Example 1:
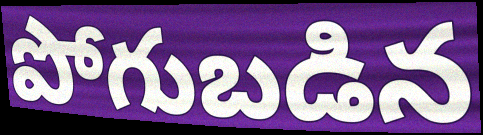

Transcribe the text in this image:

పోగుబడిన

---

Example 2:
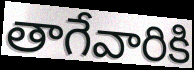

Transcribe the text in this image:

తాగేవారికి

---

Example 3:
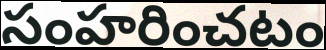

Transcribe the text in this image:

సంహరించటం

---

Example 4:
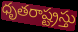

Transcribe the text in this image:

ధృతరాష్ట్రస్తు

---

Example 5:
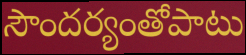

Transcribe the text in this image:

సౌందర్యంతోపాటు